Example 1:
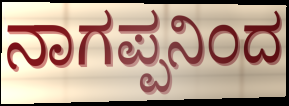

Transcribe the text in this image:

ನಾಗಪ್ಪನಿಂದ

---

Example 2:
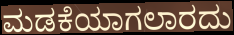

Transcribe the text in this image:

ಮಡಕೆಯಾಗಲಾರದು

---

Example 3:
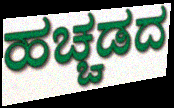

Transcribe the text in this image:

ಹಚ್ಚಡದ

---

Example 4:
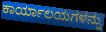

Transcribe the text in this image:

ಕಾರ್ಯಾಲಯಗಳನ್ನು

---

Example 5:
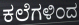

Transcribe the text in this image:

ಕಲೆಗಳಿಂದ